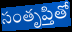
సంతృప్తితో